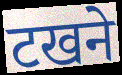
टखने